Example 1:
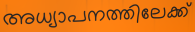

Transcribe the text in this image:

അധ്യാപനത്തിലേക്ക്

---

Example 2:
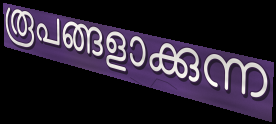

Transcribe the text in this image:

രൂപങ്ങളാക്കുന്ന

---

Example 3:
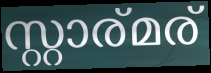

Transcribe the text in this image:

സ്റ്റാര്മര്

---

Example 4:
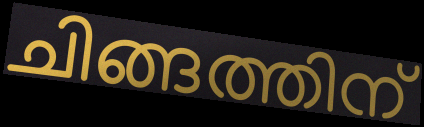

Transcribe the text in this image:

ചിങ്ങത്തിന്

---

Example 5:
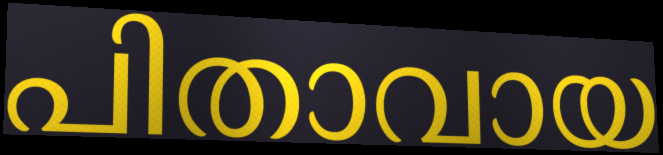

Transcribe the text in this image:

പിതാവായ